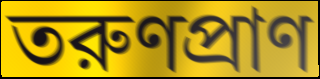
তরুণপ্রাণ